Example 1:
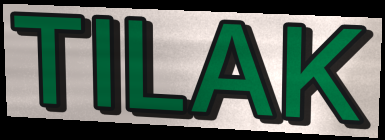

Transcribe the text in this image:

TILAK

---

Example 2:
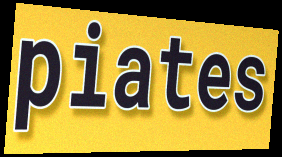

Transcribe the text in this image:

piates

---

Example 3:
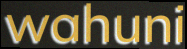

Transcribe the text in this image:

wahuni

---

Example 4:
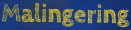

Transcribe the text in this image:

Malingering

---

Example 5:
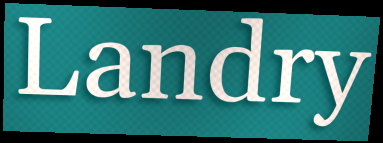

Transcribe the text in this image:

Landry